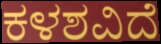
ಕಳಶವಿದೆ